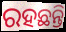
ରହଛନ୍ତି